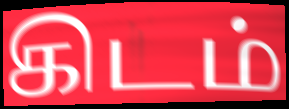
கிடம்